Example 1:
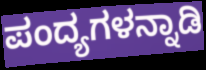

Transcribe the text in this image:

ಪಂದ್ಯಗಳನ್ನಾಡಿ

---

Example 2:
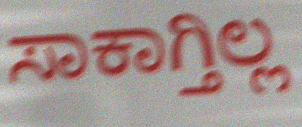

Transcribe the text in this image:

ಸಾಕಾಗ್ತಿಲ್ಲ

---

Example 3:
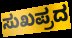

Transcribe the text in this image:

ಸುಖಪ್ರದ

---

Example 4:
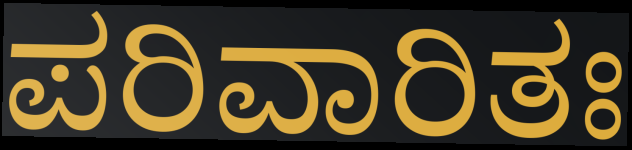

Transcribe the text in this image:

ಪರಿವಾರಿತಃ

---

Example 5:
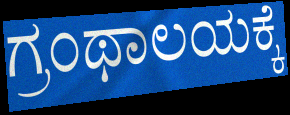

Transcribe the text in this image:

ಗ್ರಂಥಾಲಯಕ್ಕೆ